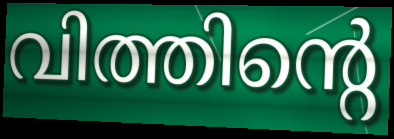
വിത്തിന്റെ